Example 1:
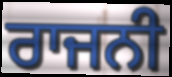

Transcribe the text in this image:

ਰਾਜਨੀ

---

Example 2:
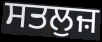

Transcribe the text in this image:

ਸਤਲੁਜ਼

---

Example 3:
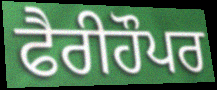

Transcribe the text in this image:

ਫੈਰੀਹੌਪਰ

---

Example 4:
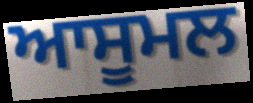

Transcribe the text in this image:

ਆਸੂਮਲ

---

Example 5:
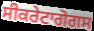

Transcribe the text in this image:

ਸੀਕਰੇਟਾਗੋਗਸ